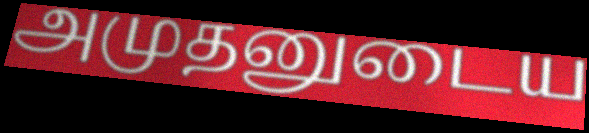
அமுதனுடைய